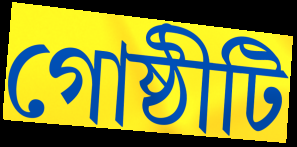
গোষ্ঠীটি